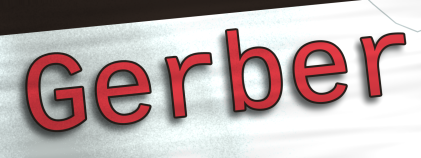
Gerber